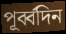
পূর্ব্বদিন